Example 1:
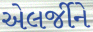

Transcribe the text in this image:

એલર્જીને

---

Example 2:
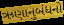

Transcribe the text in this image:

ઋણાનુબંધનો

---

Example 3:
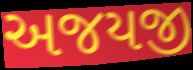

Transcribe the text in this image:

અજયજી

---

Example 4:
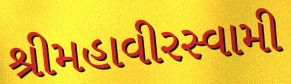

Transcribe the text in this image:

શ્રીમહાવીરસ્વામી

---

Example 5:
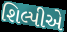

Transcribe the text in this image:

શિલ્પીએ